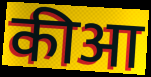
कीआ